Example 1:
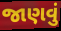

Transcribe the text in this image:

જાણવું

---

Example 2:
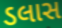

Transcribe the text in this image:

ડલાસ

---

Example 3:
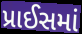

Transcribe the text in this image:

પ્રાઈસમાં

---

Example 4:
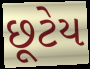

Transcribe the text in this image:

છૂટેય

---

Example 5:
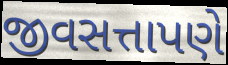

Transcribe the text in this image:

જીવસત્તાપણે